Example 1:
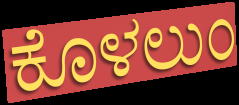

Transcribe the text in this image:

ಕೊಳಲುಂ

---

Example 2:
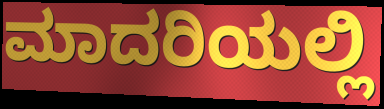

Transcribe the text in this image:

ಮಾದರಿಯಲ್ಲಿ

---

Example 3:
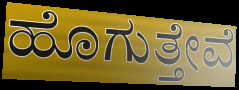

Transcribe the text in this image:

ಹೊಗುತ್ತೇವೆ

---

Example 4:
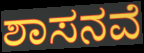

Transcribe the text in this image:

ಶಾಸನವೆ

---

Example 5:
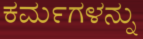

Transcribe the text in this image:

ಕರ್ಮಗಳನ್ನು